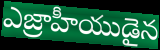
ఎజ్రాహీయుడైన